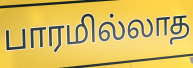
பாரமில்லாத